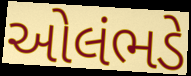
ઓલંભડે